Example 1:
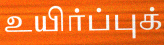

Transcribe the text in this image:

உயிர்ப்புக்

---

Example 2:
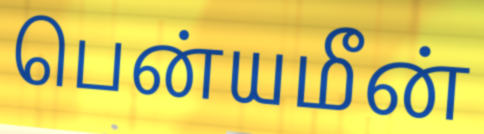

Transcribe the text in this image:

பென்யமீன்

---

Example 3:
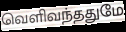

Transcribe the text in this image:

வெளிவந்ததுமே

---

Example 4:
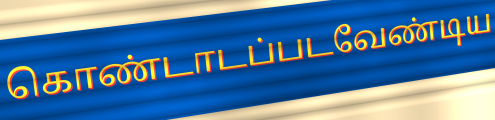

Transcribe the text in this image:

கொண்டாடப்படவேண்டிய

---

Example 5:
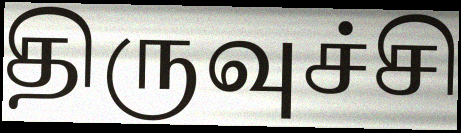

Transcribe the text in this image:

திருவுச்சி